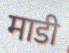
माडी